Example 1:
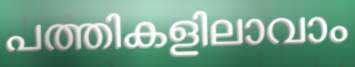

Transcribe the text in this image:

പത്തികളിലാവാം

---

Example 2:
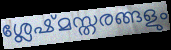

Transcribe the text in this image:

ശ്ലേഷ്മസ്തരങ്ങളും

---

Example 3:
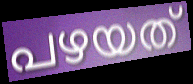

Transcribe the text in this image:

പഴയത്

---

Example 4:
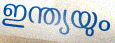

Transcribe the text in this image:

ഇന്ത്യയും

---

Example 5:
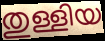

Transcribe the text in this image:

തുള്ളിയ